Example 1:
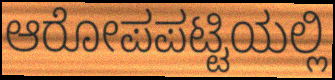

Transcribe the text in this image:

ಆರೋಪಪಟ್ಟಿಯಲ್ಲಿ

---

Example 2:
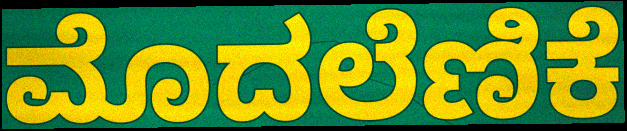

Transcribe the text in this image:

ಮೊದಲೆಣಿಕೆ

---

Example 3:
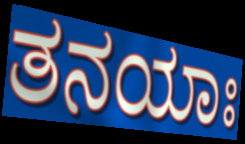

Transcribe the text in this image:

ತನಯಾಃ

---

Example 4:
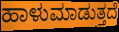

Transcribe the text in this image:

ಹಾಳುಮಾಡುತ್ತದೆ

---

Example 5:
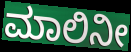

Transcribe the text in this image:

ಮಾಲಿನೀ